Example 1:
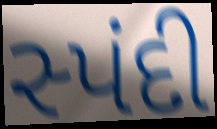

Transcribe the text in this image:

સ્પંદી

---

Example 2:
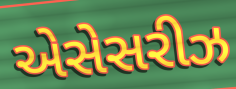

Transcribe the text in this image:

એસેસરીઝ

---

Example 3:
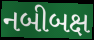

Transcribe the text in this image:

નબીબક્ષ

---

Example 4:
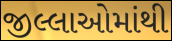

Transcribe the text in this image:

જીલ્લાઓમાંથી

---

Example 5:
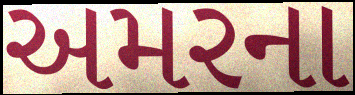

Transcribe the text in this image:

અમરના